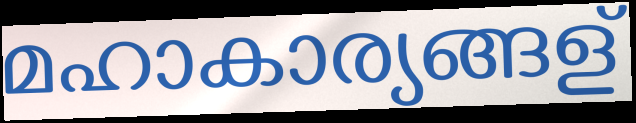
മഹാകാര്യങ്ങള്